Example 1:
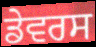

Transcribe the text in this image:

ਡੇਵਰਸ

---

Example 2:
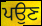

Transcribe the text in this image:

ਪਉਣ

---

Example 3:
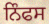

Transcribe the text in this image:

ਨਿੰਫਸ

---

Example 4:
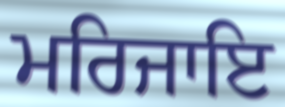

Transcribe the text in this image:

ਮਰਿਜਾਇ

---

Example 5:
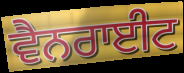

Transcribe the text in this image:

ਵੈਨਰਾਈਟ